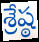
శ్రేష్ఠ